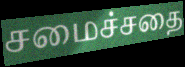
சமைச்சதை